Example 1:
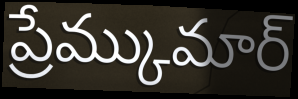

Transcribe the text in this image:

ప్రేమ్కుమార్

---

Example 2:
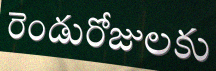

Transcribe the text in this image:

రెండురోజులకు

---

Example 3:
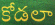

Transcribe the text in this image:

కోడలా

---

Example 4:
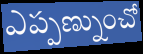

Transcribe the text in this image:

ఎప్పణ్నుంచో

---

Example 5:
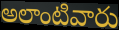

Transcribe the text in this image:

అలాంటివారు